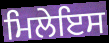
ਮਿਲੇਇਸ